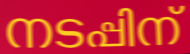
നടപ്പിന്